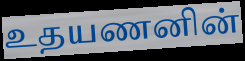
உதயணனின்